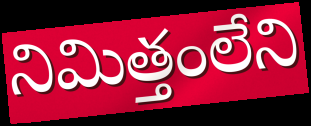
నిమిత్తంలేని